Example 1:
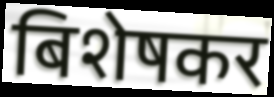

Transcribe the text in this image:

बिशेषकर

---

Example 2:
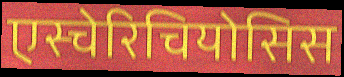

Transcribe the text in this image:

एस्चेरिचियोसिस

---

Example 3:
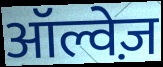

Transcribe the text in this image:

ऑल्वेज़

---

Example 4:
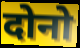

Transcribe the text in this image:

दोनो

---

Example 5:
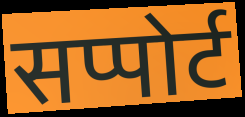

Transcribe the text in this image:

सप्पोर्ट